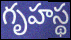
గృహస్థ